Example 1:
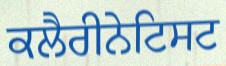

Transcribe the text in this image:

ਕਲੈਰੀਨੇਟਿਸਟ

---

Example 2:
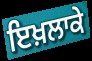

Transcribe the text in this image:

ਇਖ਼ਲਾਕੇ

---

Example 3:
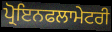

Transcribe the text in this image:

ਪ੍ਰੋਇਨਫਲਾਮੇਟਰੀ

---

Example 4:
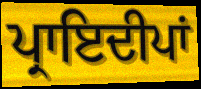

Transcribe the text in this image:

ਪ੍ਰਾਇਦੀਪਾਂ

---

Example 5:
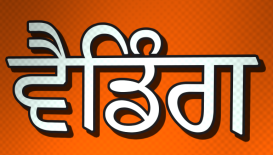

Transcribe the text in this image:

ਵੈਡਿੰਗ